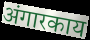
अंगारकाय